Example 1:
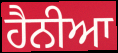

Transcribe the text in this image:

ਹੈਨੀਆ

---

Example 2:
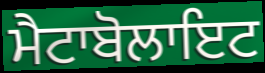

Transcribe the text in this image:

ਮੈਟਾਬੋਲਾਇਟ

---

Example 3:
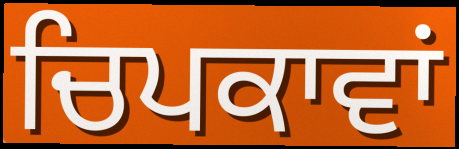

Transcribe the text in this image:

ਚਿਪਕਾਵਾਂ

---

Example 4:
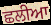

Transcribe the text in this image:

ਛਲੀਆ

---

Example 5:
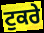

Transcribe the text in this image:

ਟੁਕਰੇ